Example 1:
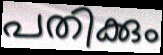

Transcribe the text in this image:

പതിക്കും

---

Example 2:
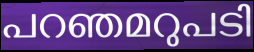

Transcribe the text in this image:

പറഞമറുപടി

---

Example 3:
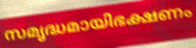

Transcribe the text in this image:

സമൃദ്ധമായിഭക്ഷണം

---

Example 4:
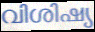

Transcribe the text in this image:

വിശിഷ്യ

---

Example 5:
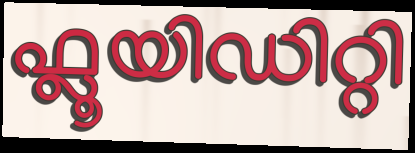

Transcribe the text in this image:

ഫ്ലൂയിഡിറ്റി